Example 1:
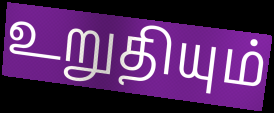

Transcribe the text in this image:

உறுதியும்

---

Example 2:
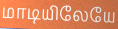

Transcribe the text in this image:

மாடியிலேயே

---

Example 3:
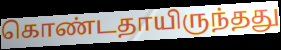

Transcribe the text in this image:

கொண்டதாயிருந்தது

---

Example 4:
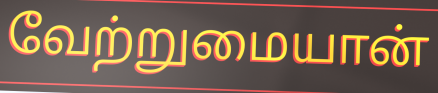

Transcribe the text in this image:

வேற்றுமையான்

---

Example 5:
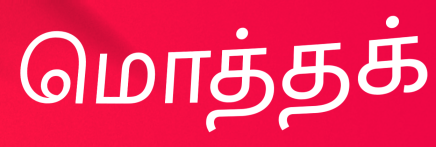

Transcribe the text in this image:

மொத்தக்